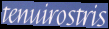
tenuirostris